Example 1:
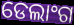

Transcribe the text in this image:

ଡେଲାଂଗ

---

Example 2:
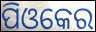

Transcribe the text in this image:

ପିଓକେର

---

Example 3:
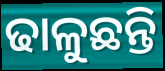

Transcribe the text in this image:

ଢାଳୁଛନ୍ତି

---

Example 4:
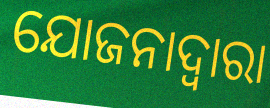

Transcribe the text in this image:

ଯୋଜନାଦ୍ବାରା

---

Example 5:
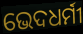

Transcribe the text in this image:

ଭେଦଧର୍ମୀ